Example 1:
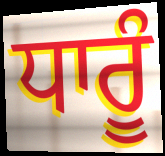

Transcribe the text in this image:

ਧਾਰੂੰ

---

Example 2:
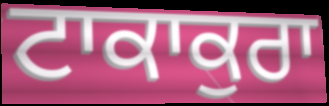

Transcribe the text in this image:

ਟਾਕਾਕੁਰਾ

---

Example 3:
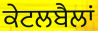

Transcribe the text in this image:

ਕੇਟਲਬੈਲਾਂ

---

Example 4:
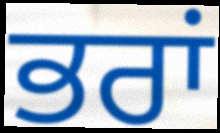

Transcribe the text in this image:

ਭਰਾਂ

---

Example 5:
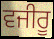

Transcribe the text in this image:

ਵਜੀਰੂ